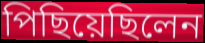
পিছিয়েছিলেন